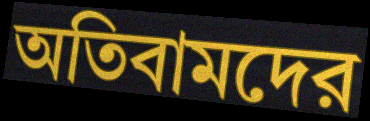
অতিবামদের